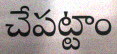
చేపట్టాం